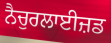
ਨੈਚੁਰਲਾਈਜ਼ਡ